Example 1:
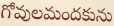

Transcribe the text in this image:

గోవులమందకును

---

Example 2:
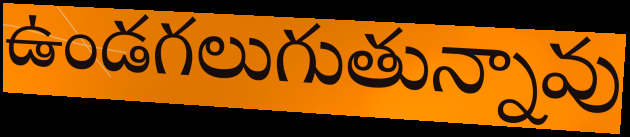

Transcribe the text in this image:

ఉండగలుగుతున్నావు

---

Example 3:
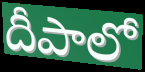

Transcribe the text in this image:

దీపాలో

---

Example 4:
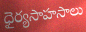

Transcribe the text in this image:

ధైర్యసాహసాలు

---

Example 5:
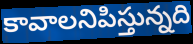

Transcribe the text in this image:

కావాలనిపిస్తున్నది